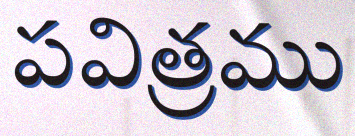
పవిత్రము